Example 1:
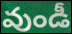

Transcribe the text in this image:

వుండీ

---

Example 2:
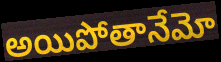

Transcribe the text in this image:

అయిపోతానేమో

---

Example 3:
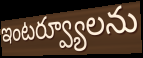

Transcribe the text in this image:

ఇంటర్వ్యూలను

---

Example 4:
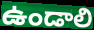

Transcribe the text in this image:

ఉండాలి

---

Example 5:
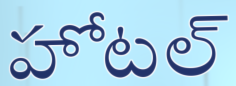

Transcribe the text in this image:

హోటల్